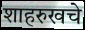
शाहरुखचे